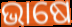
ଭାଷେ